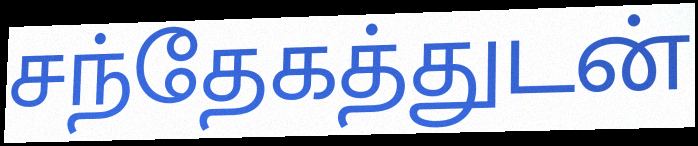
சந்தேகத்துடன்